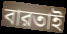
বারতাই